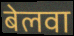
बेलवा